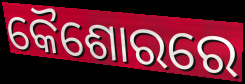
କୈଶୋରରେ